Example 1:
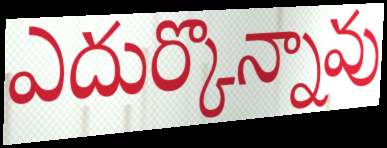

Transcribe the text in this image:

ఎదుర్కొన్నావు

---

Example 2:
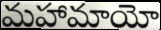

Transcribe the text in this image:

మహామాయో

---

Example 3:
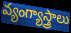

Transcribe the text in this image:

వ్యంగ్యాస్త్రాలు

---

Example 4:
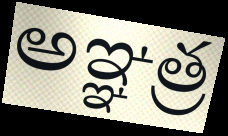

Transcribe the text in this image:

అఞ్ఞత్ర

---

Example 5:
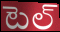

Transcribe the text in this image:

టెల్